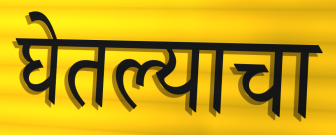
घेतल्याचा